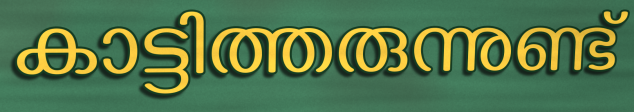
കാട്ടിത്തരുന്നുണ്ട്